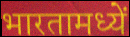
भारतामध्यें